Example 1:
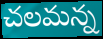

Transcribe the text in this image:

చలమన్న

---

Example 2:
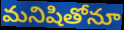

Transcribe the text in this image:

మనిషితోనూ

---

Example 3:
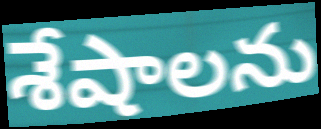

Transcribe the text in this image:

శేషాలను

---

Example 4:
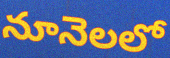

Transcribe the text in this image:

నూనెలలో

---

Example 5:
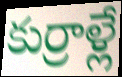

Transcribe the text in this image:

కుర్రాళ్లే